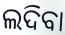
ଲଦିବା